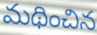
మథించిన